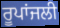
ਰੂਪਾਂਜਲੀ